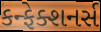
કન્ફેક્શનર્સ